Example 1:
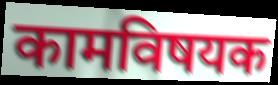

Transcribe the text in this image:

कामविषयक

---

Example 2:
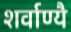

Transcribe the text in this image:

शर्वाण्यै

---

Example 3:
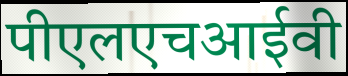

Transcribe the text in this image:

पीएलएचआईवी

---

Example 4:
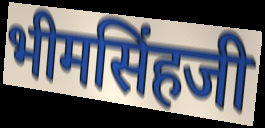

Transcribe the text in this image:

भीमसिंहजी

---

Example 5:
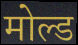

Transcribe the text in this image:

मोल्ड